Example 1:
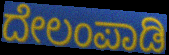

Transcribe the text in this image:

ದೇಲಂಪಾಡಿ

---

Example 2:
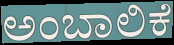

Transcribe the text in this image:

ಅಂಬಾಲಿಕೆ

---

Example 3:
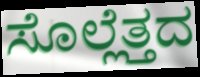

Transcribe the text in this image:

ಸೊಲ್ಲೆತ್ತದ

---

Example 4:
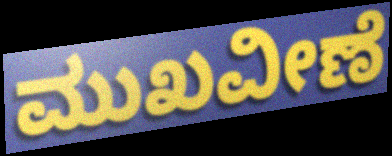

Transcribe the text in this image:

ಮುಖವೀಣೆ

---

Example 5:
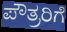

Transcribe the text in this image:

ಪೌತ್ರರಿಗೆ